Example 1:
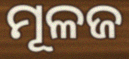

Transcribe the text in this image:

ମୂଳଜ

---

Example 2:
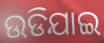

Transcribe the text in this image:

ଉଡିଯାଇ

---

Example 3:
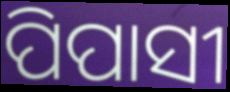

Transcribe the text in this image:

ପିପାସୀ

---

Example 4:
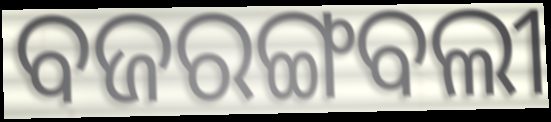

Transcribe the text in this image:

ବଜରଙ୍ଗବଲୀ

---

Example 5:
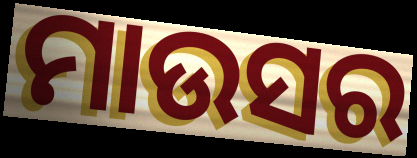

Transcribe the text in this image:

ମାଉସର